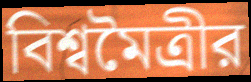
বিশ্বমৈত্রীর